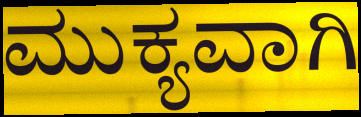
ಮುಕ್ಯವಾಗಿ